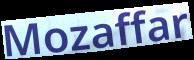
Mozaffar